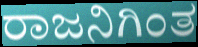
ರಾಜನಿಗಿಂತ